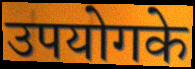
उपयोगके